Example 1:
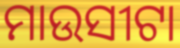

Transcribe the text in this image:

ମାଉସୀଟା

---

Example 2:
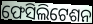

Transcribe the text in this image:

ଫେସିଲିଟେଶନ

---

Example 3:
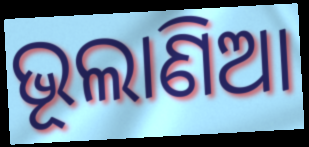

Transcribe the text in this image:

ଭୂଲାଣିଆ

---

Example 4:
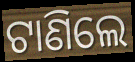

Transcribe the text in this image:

ଟାଣିଲେ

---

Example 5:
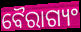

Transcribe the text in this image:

ବୈରାଗ୍ୟଂ